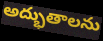
అద్భుతాలను